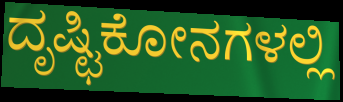
ದೃಷ್ಟಿಕೋನಗಳಲ್ಲಿ